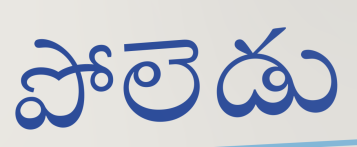
పోలెడు